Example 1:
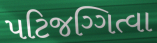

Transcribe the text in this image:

પટિજગ્ગિત્વા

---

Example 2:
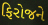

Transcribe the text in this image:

ફિરોજને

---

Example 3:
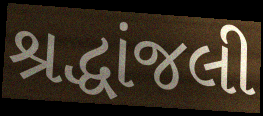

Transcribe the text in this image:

શ્રદ્ધાંજલી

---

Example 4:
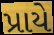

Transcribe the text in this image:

પ્રાયે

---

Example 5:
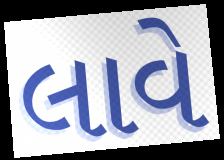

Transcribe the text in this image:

લાવે